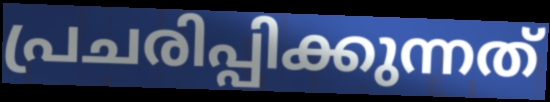
പ്രചരിപ്പിക്കുന്നത്